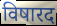
विषारद